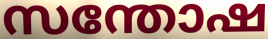
സന്തോഷ